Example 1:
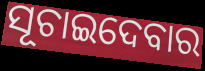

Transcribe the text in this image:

ସୂଚାଇଦେବାର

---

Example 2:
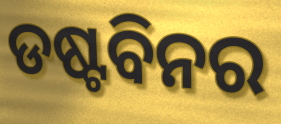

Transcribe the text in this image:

ଡଷ୍ଟବିନର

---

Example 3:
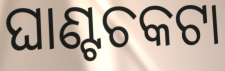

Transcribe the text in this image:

ଘାଣ୍ଟଚକଟା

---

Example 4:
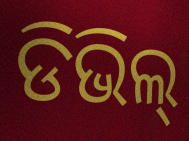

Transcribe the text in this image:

ଡିଭିଲ୍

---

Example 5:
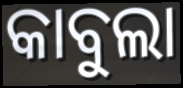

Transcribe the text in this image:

କାବୁଲା